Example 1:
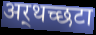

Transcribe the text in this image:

अर्थच्छटा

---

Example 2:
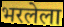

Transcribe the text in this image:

भरलेला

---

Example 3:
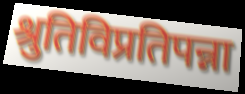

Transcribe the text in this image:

श्रुतिविप्रतिपन्ना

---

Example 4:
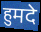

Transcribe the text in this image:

हुमदे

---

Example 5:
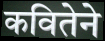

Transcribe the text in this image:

कवितेने